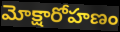
మోక్షారోహణం